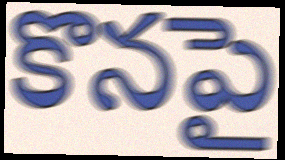
కొనపై